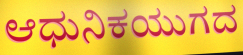
ಆಧುನಿಕಯುಗದ